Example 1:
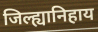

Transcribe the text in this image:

जिल्ह्यानिहाय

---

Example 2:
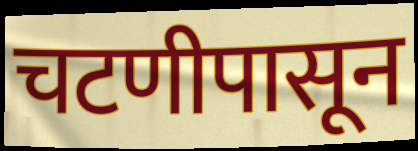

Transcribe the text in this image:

चटणीपासून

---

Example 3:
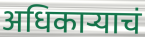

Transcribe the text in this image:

अधिकाऱ्याचं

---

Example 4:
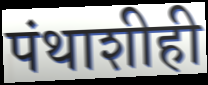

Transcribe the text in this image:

पंथाशीही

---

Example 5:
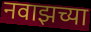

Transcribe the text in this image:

नवाझच्या